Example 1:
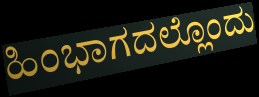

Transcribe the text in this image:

ಹಿಂಭಾಗದಲ್ಲೊಂದು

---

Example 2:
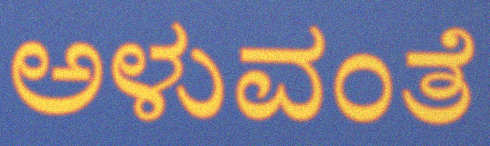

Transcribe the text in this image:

ಅಳುವಂತೆ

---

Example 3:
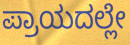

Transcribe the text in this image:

ಪ್ರಾಯದಲ್ಲೇ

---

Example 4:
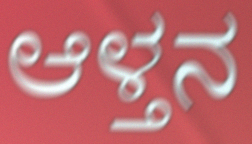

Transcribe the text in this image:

ಆಳ್ತನ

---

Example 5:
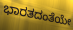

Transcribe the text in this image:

ಭಾರತದಂತೆಯೇ